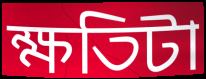
ক্ষতিটা